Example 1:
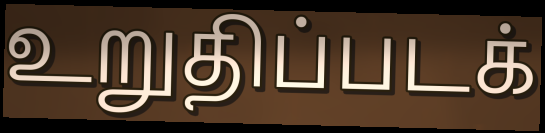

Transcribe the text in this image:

உறுதிப்படக்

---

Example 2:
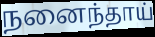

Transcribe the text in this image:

நனைந்தாய்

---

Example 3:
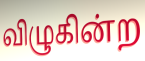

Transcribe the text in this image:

விழுகின்ற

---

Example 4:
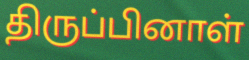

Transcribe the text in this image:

திருப்பினாள்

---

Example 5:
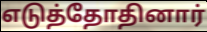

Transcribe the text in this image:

எடுத்தோதினார்